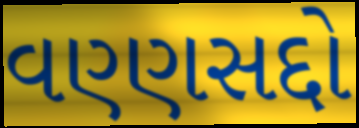
વણ્ણસદ્દો